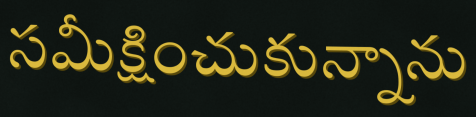
సమీక్షించుకున్నాను